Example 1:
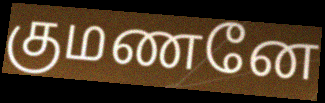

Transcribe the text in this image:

குமணனே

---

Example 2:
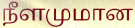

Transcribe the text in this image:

நீளமுமான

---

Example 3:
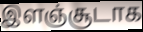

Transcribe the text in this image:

இளஞ்சூடாக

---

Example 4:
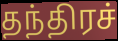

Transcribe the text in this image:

தந்திரச்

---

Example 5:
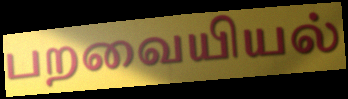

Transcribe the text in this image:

பறவையியல்